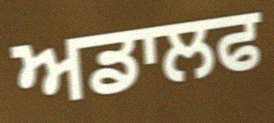
ਅਡਾਲਫ